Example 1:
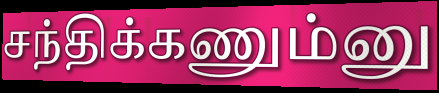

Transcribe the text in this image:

சந்திக்கணும்னு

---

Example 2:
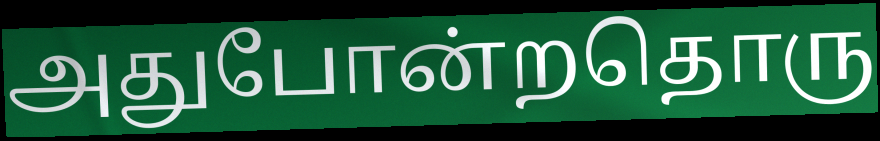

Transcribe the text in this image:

அதுபோன்றதொரு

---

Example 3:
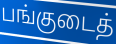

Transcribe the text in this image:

பங்குடைத்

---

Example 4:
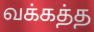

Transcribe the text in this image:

வக்கத்த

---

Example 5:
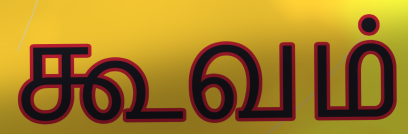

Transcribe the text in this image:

கூவம்